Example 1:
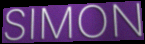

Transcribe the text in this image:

SIMON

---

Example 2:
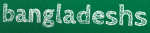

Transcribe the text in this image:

bangladeshs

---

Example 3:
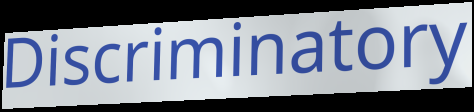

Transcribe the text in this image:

Discriminatory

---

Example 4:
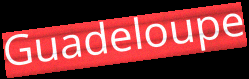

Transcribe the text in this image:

Guadeloupe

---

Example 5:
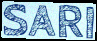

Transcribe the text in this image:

SARI